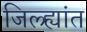
जिल्ह्यांत